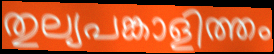
തുല്യപങ്കാളിത്തം